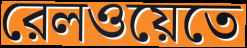
রেলওয়েতে